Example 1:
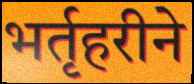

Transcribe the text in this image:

भर्तृहरीने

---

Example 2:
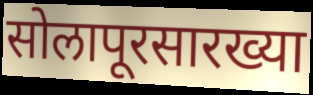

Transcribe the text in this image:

सोलापूरसारख्या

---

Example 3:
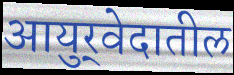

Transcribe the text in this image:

आयुर्वेदातील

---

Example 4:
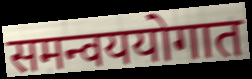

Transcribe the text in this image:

समन्वययोगात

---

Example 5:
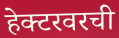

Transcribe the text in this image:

हेक्टरवरची